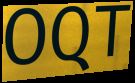
OQT